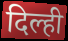
दिल्ही